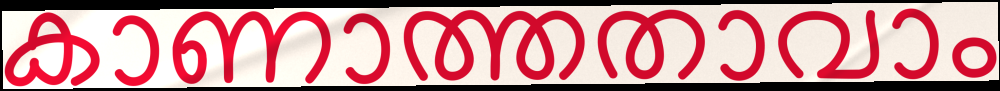
കാണാത്തതാവാം